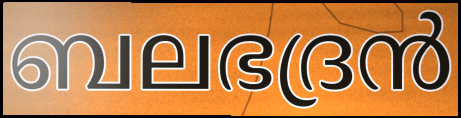
ബലഭദ്രൻ